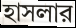
হাসলার